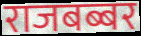
राजबब्बर